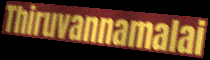
Thiruvannamalai